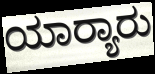
ಯಾರ‍್ಯಾರು